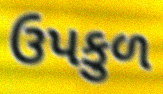
ઉપકુળ